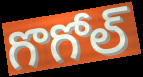
గొగోల్